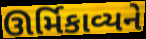
ઊર્મિકાવ્યને